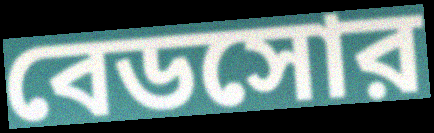
বেডসোর